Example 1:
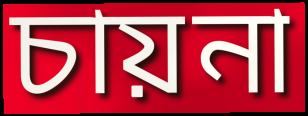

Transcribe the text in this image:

চায়না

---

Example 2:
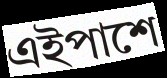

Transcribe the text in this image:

এইপাশে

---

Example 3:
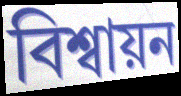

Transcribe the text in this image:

বিশ্বায়ন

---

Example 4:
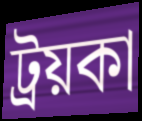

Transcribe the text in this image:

ট্রয়কা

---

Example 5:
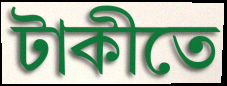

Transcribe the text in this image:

টাকীতে